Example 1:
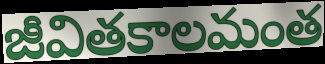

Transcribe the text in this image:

జీవితకాలమంత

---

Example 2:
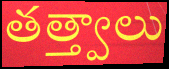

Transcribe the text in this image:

తత్త్వాలు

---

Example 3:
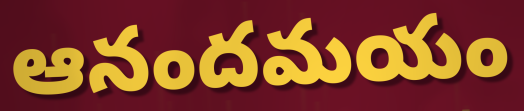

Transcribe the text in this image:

ఆనందమయం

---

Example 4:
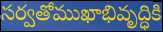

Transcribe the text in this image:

సర్వతోముఖాభివృద్ధికి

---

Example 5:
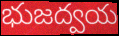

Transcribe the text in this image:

భుజద్వయ